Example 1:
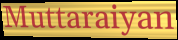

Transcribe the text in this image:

Muttaraiyan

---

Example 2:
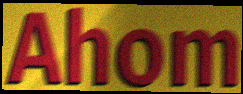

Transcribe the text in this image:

Ahom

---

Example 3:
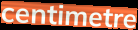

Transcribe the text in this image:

centimetre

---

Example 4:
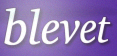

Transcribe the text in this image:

blevet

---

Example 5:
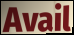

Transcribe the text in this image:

Avail